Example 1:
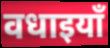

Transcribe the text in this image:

वधाइयाँ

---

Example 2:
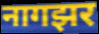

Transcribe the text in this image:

नागझर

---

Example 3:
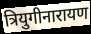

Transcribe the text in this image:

त्रियुगीनारायण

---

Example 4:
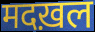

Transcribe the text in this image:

मदख़ल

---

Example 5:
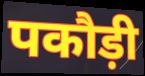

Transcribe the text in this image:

पकौड़ी